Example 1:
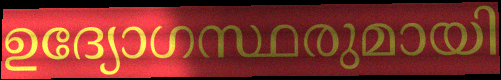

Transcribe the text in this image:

ഉദ്യോഗസ്ഥരുമായി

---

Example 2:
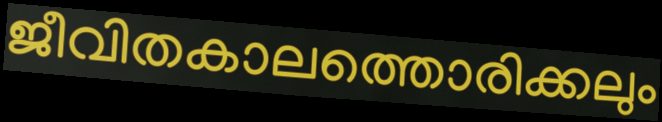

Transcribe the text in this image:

ജീവിതകാലത്തൊരിക്കലും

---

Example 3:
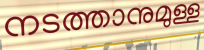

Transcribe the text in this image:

നടത്താനുമുള്ള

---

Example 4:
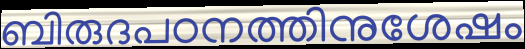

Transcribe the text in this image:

ബിരുദപഠനത്തിനുശേഷം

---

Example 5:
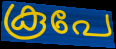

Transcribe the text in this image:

കൂപേ